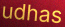
udhas